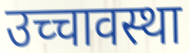
उच्चावस्था